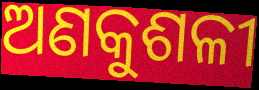
ଅଣକୁଶଳୀ